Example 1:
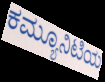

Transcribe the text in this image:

ಕಮ್ಯೂನಿಟಿಯ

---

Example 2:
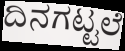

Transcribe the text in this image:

ದಿನಗಟ್ಟಲೆ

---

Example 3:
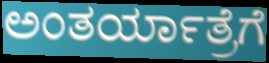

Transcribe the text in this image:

ಅಂತರ್ಯಾತ್ರೆಗೆ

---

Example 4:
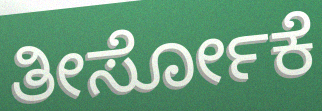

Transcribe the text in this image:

ತೀರ್ಸೋಕೆ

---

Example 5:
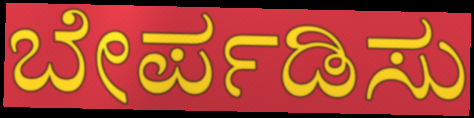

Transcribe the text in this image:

ಬೇರ್ಪಡಿಸು